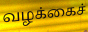
வழக்கைச்